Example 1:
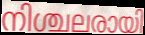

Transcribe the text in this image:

നിശ്ചലരായി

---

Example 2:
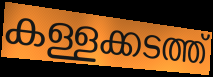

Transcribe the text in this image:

കള്ളക്കടത്ത്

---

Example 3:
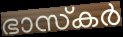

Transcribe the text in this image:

ഭാസ്‌കർ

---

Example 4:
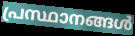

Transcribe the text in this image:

പ്രസ്ഥാനങ്ങൾ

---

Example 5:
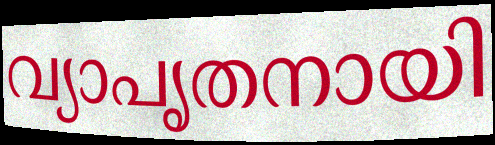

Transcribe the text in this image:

വ്യാപൃതനായി